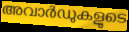
അവാർഡുകളുടെ